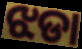
ଝଡା